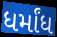
ધર્માંધ